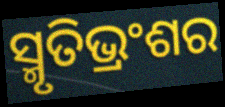
ସ୍ମୃତିଭ୍ରଂଶର